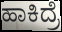
ಹಾಕಿದ್ರೆ